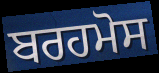
ਬਰਹਮੋਸ